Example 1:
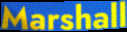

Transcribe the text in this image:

Marshall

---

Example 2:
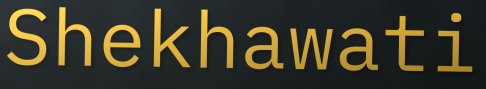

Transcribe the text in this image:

Shekhawati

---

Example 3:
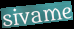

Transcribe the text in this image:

sivame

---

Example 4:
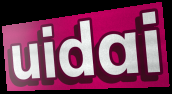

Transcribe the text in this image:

uidai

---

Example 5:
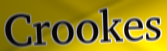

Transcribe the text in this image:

Crookes